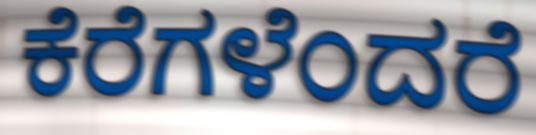
ಕೆರೆಗಳೆಂದರೆ